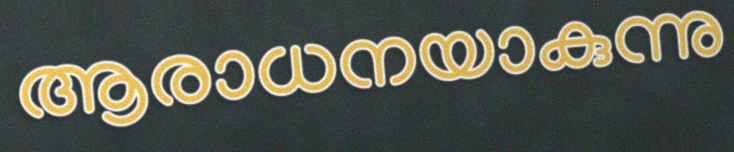
ആരാധനയാകുന്നു